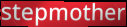
stepmother